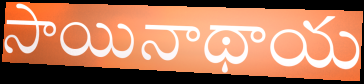
సాయినాథాయ